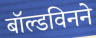
बॉल्डविनने